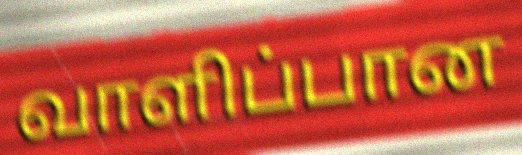
வாளிப்பான